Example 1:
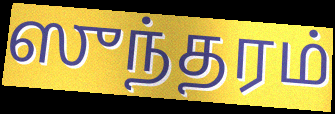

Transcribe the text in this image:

ஸுந்தரம்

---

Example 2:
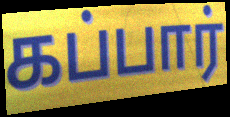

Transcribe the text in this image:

கப்பார்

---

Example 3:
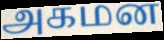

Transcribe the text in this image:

அகமன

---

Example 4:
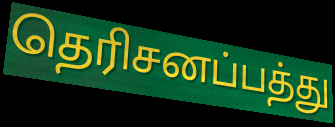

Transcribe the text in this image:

தெரிசனப்பத்து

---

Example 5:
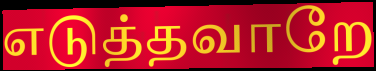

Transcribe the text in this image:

எடுத்தவாறே